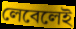
লেবেলেই